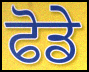
ਫੋਡੇ